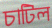
চাটিল